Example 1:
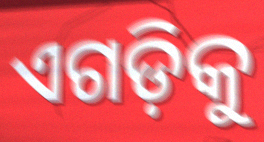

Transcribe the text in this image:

ଏଗଡ଼ିକୁ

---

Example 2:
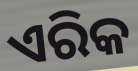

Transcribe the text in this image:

ଏରିକ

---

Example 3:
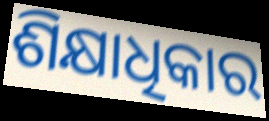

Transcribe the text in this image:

ଶିକ୍ଷାଧିକାର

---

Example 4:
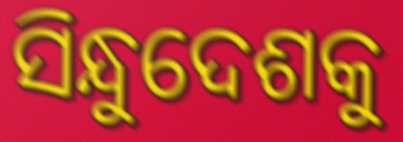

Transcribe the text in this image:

ସିନ୍ଧୁଦେଶକୁ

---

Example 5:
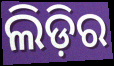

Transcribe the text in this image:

ଲିଡ଼ିର